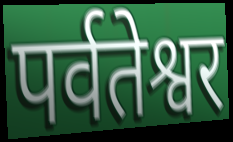
पर्वतेश्वर